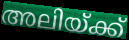
അലിയ്ക്ക്